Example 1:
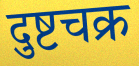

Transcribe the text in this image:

दुष्टचक्र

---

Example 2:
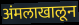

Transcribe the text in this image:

अंमलाखालून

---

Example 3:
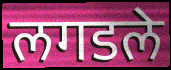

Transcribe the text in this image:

लगडले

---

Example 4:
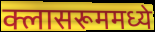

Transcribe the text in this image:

क्लासरूममध्ये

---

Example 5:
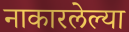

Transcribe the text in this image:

नाकारलेल्या